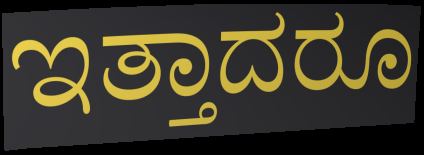
ಇತ್ತಾದರೂ